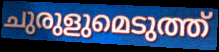
ചുരുളുമെടുത്ത്